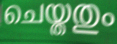
ചെയ്തതും